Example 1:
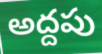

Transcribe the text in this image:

అద్దపు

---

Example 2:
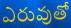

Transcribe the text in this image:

ఎరువుతో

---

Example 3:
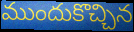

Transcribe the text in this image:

ముందుకొచ్చిన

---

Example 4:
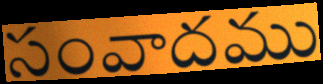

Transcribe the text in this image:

సంవాదము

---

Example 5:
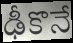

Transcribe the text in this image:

ఢీకొనే